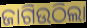
ଜାଗିଉଠିଲା